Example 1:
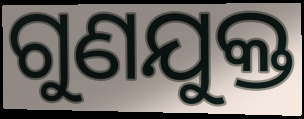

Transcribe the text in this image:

ଗୁଣଯୁକ୍ତ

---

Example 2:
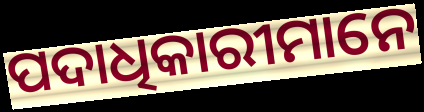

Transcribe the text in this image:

ପଦାଧିକାରୀମାନେ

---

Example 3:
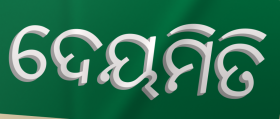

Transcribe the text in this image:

ଦେୟମିତି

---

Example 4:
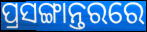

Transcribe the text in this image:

ପ୍ରସଙ୍ଗାନ୍ତରରେ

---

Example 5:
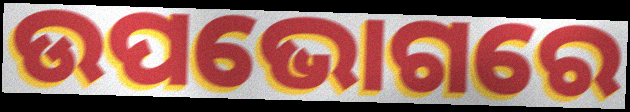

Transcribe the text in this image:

ଉପଭୋଗରେ